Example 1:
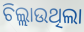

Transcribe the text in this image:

ଚିଲ୍ଲାଉଥିଲା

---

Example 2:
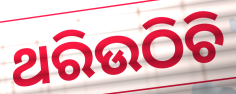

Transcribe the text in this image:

ଥରିଉଠିଚି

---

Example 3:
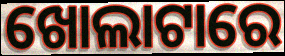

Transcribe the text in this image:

ଖୋଲାଟାରେ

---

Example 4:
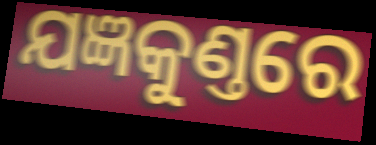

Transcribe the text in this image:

ଯଜ୍ଞକୁଣ୍ତରେ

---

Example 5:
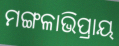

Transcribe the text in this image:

ମଙ୍ଗଳାଭିପ୍ରାୟ